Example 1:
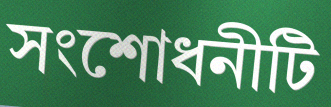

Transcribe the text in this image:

সংশোধনীটি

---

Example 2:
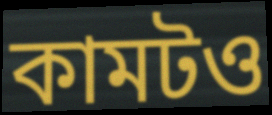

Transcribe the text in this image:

কামটও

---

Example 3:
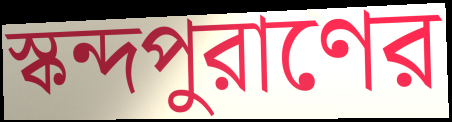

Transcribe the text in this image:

স্কন্দপুরাণের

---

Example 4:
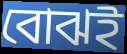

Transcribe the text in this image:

বোঝই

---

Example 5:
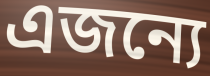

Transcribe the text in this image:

এজন্যে